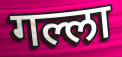
गल्ला